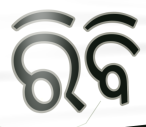
ରିବି